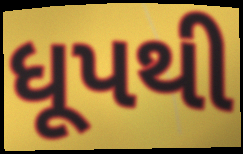
ધૂપથી